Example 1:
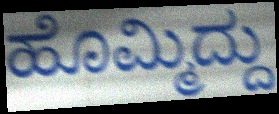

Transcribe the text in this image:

ಹೊಮ್ಮಿದ್ದು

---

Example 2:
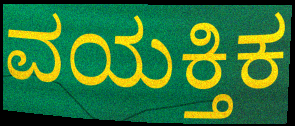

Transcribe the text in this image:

ವಯಕ್ತಿಕ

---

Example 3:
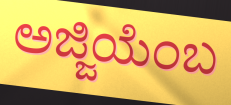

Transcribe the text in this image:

ಅಜ್ಜಿಯೆಂಬ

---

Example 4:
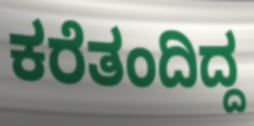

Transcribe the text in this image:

ಕರೆತಂದಿದ್ದ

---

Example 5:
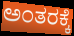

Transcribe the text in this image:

ಅಂತರಕ್ಕೆ